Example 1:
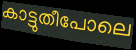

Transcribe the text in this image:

കാട്ടുതീപോലെ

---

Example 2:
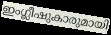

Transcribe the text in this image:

ഇംഗ്ലീഷുകാരുമായി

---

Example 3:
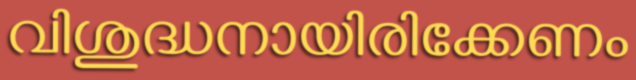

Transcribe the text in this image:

വിശുദ്ധനായിരിക്കേണം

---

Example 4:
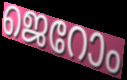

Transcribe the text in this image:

ജെറോം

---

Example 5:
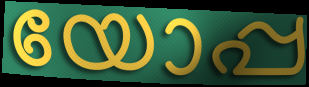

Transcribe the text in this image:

യോപ്പ